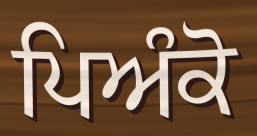
ਪਿਅੰਕੋ